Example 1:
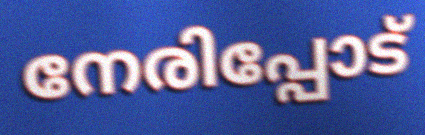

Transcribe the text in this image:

നേരിപ്പോട്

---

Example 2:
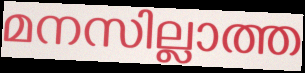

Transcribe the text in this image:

മനസില്ലാത്ത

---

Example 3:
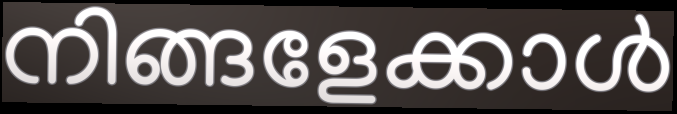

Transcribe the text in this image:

നിങ്ങളേക്കാൾ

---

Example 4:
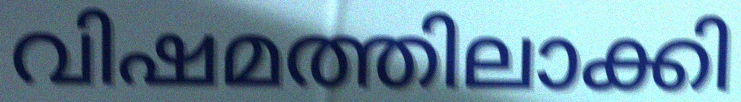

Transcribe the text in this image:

വിഷമത്തിലാക്കി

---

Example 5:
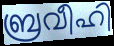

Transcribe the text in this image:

ബ്രവീഹി